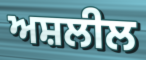
ਅਸ਼ਲੀਲ